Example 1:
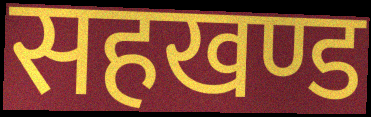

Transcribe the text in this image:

सहखण्ड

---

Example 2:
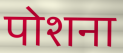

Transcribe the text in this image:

पोशना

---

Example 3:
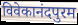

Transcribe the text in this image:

विवेकानंदपुरम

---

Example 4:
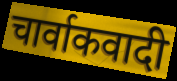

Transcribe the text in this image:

चार्वाकवादी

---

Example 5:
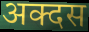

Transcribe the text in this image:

अक्दस